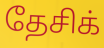
தேசிக்